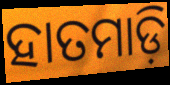
ହାତମାଡ଼ି